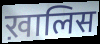
ख़ालिस